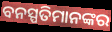
ବନସ୍ପତିମାନଙ୍କର